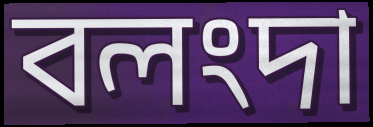
বলংদা